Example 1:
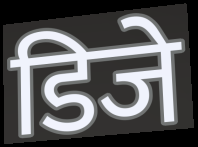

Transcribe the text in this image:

डिजे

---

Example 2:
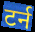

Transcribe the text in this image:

टर्न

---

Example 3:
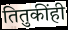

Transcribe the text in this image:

तितुकींही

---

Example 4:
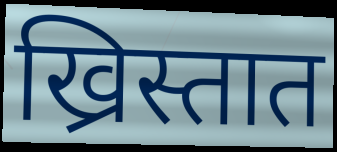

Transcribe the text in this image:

ख्रिस्तात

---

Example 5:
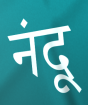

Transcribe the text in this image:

नंदू